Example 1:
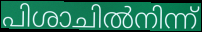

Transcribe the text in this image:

പിശാചിൽനിന്ന്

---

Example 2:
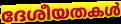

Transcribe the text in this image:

ദേശീയതകൾ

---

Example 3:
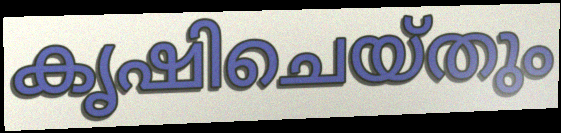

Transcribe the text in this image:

കൃഷിചെയ്തും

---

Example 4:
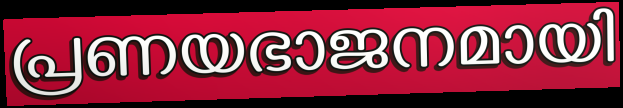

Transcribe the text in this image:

പ്രണയഭാജനമായി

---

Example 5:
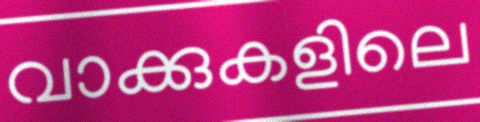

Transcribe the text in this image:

വാക്കുകളിലെ